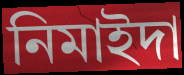
নিমাইদা